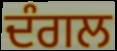
ਦੰਗਲ